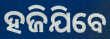
ହଜିଯିବେ